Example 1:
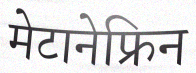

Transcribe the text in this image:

मेटानेफ्रिन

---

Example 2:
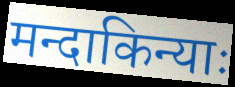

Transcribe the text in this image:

मन्दाकिन्याः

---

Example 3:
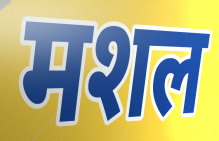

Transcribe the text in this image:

मशल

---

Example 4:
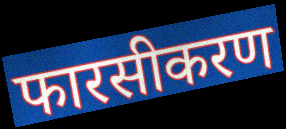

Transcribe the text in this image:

फारसीकरण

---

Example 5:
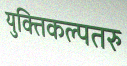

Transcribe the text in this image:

युक्तिकल्पतरु